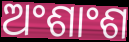
ଅଂଶାଂଶ